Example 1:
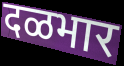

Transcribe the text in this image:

दळभार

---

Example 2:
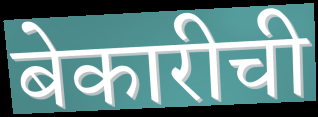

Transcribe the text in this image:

बेकारीची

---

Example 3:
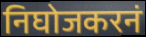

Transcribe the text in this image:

निघोजकरनं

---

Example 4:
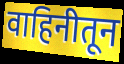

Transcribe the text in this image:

वाहिनीतून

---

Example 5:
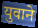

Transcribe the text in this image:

युवाने